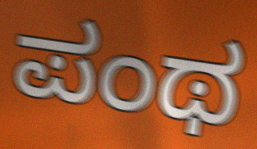
ಪಂಥ